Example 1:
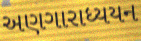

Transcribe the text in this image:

અણગારાધ્યયન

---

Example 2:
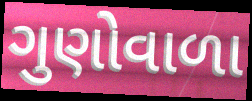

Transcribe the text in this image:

ગુણોવાળા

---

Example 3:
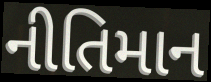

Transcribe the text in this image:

નીતિમાન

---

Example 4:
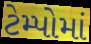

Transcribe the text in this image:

ટેમ્પોમાં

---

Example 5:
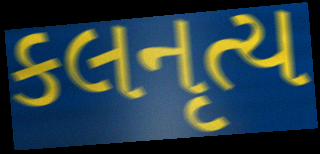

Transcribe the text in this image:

કલનૃત્ય